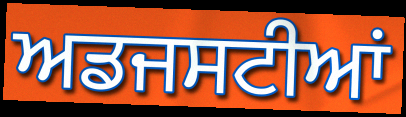
ਅਡਜਸਟੀਆਂ